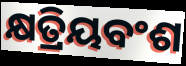
କ୍ଷତ୍ରିୟବଂଶ